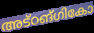
അട്ഠങ്ഗികോ